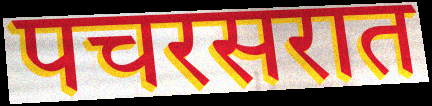
पचरसरात